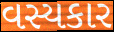
વસ્યકાર